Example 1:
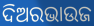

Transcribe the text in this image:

ଦିଅରଭାଉଜ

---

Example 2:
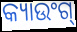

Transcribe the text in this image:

କ୍ୟାଉଂଗ୍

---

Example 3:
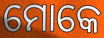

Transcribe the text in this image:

ମୋକେ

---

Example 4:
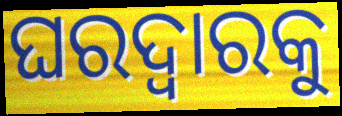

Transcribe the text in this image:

ଘରଦ୍ୱାରକୁ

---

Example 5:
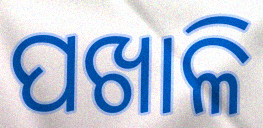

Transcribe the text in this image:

ପଖାଳି